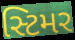
સ્ટિમર